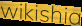
wikishia